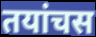
तयांचस